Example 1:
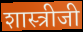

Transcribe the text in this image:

शास्त्रीजी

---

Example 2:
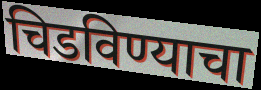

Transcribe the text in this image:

चिडविण्याचा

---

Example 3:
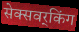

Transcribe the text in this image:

सेक्सवर्किंग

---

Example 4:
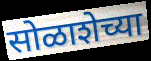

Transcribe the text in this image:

सोळाशेच्या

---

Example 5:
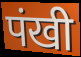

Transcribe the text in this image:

पंखी